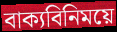
বাক্যবিনিময়ে